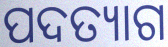
ପଦତ୍ୟାଗ